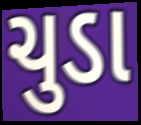
ચુડા